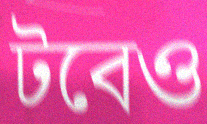
টবেও